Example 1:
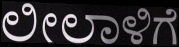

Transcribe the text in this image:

ಲೀಲಾಳಿಗೆ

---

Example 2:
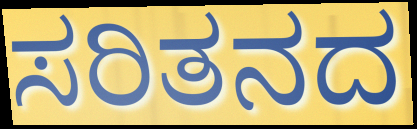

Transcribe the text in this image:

ಸರಿತನದ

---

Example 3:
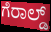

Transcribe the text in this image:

ಗೆರಾಲ್ಡ್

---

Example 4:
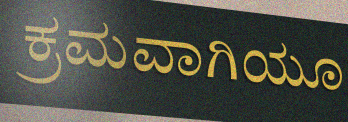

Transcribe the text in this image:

ಕ್ರಮವಾಗಿಯೂ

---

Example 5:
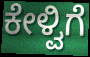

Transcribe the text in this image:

ಕೇಳ್ವಿಗೆ